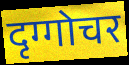
दृग्गोचर